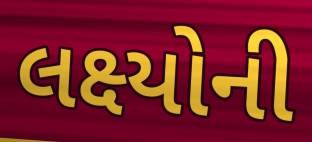
લક્ષ્યોની